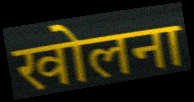
खोलना